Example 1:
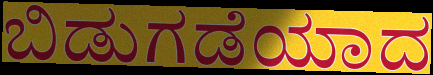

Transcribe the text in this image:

ಬಿಡುಗಡೆಯಾದ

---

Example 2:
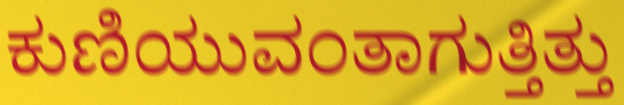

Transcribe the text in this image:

ಕುಣಿಯುವಂತಾಗುತ್ತಿತ್ತು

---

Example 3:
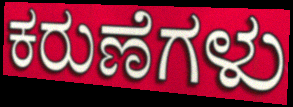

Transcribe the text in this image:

ಕರುಣೆಗಳು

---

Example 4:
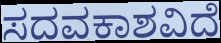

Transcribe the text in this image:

ಸದವಕಾಶವಿದೆ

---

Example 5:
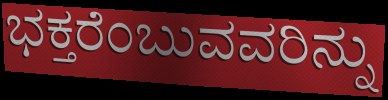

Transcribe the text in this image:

ಭಕ್ತರೆಂಬುವವರಿನ್ನು